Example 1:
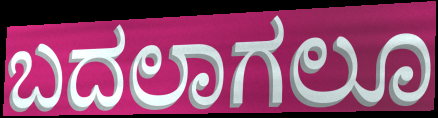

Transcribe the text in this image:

ಬದಲಾಗಲೂ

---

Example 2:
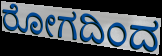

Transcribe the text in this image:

ರೋಗದಿಂದ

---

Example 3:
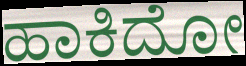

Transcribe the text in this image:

ಹಾಕಿದೋ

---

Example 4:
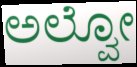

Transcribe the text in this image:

ಅಲ್ವೋ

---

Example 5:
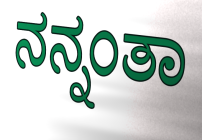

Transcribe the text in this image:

ನನ್ನಂತಾ